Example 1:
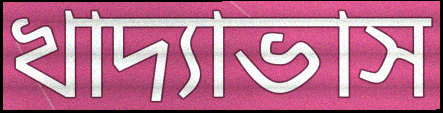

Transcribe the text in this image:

খাদ্যাভাস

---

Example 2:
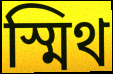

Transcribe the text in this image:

স্মিথ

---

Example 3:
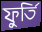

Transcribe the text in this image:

ফুৰ্তি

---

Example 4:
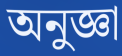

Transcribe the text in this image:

অনুজ্ঞা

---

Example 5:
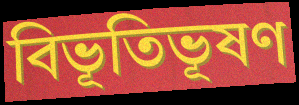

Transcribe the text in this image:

বিভূতিভূষণ